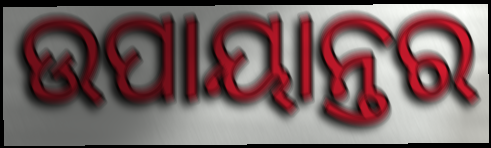
ଉପାୟାନ୍ତର